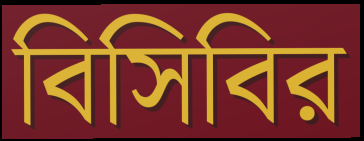
বিসিবির